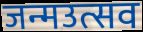
जन्मउत्सव